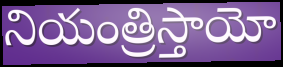
నియంత్రిస్తాయో